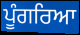
ਪੂੰਗਰਿਆ